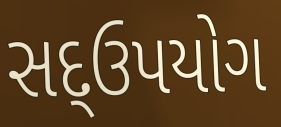
સદ્ઉપયોગ